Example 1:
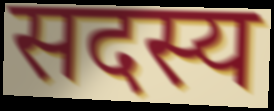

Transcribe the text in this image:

सदस्‍य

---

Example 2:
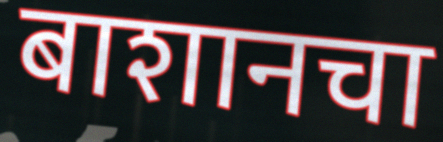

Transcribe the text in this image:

बाशानचा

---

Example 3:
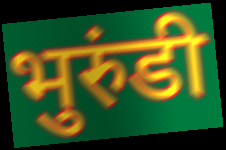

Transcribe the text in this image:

भुरुंडी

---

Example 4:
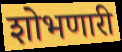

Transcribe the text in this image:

शोभणारी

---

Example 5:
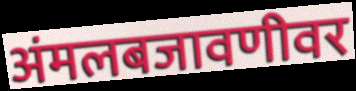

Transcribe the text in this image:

अंमलबजावणीवर